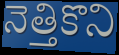
నెత్తికొని